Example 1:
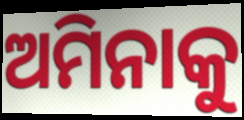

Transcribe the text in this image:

ଅମିନାକୁ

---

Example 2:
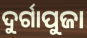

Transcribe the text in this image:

ଦୁର୍ଗାପୁଜା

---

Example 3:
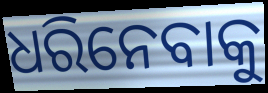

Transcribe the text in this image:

ଧରିନେବାକୁ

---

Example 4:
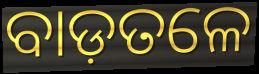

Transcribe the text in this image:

ବାଡ଼ତଳେ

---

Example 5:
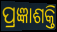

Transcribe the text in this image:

ପ୍ରଜ୍ଞାଶକ୍ତି